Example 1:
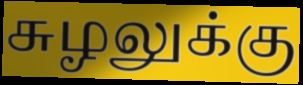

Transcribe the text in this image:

சுழலுக்கு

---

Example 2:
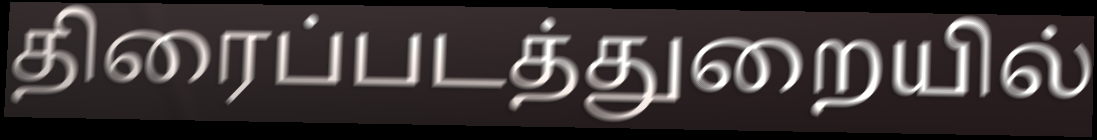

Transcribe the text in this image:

திரைப்படத்துறையில்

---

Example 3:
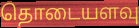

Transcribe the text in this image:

தொடையளவு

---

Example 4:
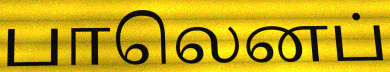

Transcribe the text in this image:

பாலெனப்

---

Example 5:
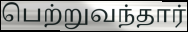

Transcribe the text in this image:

பெற்றுவந்தார்